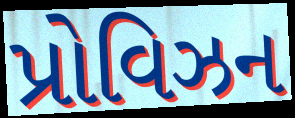
પ્રોવિઝન